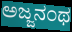
ಅಜ್ಜನಂಥ